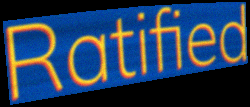
Ratified